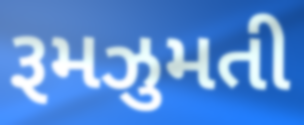
રૂમઝુમતી